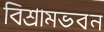
বিশ্রামভবন